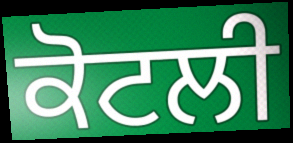
ਕੋਟਲੀ